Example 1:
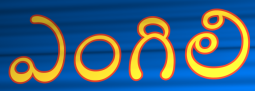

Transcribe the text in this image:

ఎంగిలి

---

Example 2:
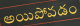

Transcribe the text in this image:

అయిపోవడం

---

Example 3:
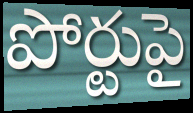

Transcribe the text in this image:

పోర్టుపై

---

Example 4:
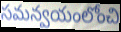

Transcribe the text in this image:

సమన్వయంలోంచి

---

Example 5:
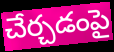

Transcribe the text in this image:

చేర్చడంపై